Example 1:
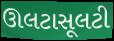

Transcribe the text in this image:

ઊલટાસૂલટી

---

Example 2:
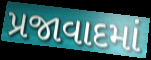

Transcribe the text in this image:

પ્રજાવાદમાં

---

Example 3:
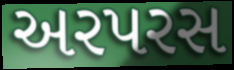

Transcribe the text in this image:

અરપરસ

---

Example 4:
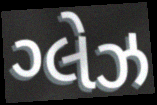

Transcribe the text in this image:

ગ્લેઝ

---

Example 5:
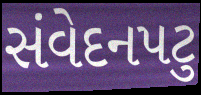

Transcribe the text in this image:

સંવેદનપટુ